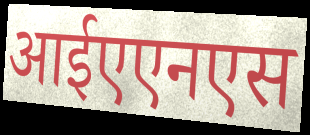
आईएएनएस